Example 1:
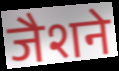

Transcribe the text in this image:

जैशने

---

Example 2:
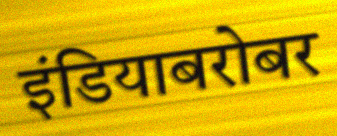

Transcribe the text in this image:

इंडियाबरोबर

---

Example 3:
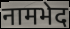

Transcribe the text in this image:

नामभेद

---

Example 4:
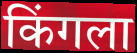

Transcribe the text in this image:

किंगला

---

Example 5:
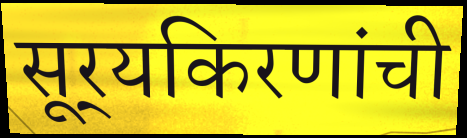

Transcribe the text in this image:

सूर्यकिरणांची